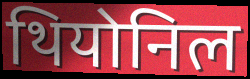
थियोनिल